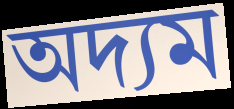
অদ্যম